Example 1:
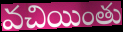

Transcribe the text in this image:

వచియింతు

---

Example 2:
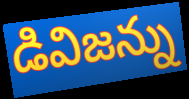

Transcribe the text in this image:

డివిజన్ను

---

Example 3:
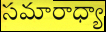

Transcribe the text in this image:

సమారాధ్యా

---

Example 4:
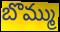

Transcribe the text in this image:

బొమ్ము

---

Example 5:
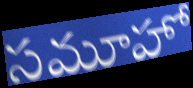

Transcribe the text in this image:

సమూహో